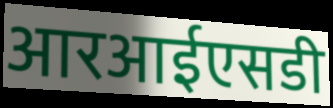
आरआईएसडी